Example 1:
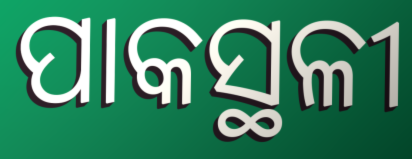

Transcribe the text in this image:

ପାକସ୍ଥଳୀ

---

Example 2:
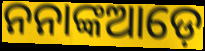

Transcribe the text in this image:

ନନାଙ୍କଆଡ଼େ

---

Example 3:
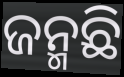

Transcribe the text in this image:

ଜନ୍ମଛି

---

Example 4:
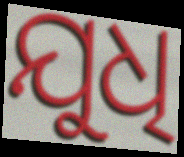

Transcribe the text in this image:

ଯୁଧି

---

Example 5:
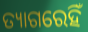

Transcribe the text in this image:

ତ୍ୟାଗରେହିଁ